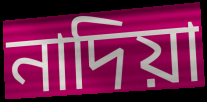
নাদিয়া